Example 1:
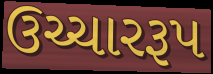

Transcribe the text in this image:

ઉચ્ચારરૂપ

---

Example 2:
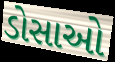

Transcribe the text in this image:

ડોસાઓ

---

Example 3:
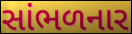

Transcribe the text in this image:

સાંભળનાર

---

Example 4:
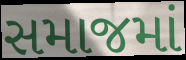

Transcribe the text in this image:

સમાજમાં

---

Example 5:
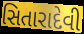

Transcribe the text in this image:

સિતારાદેવી